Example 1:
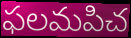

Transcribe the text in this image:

ఫలమపిచ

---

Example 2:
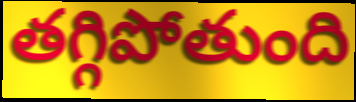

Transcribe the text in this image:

తగ్గిపోతుంది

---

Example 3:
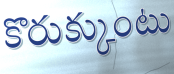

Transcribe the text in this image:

కొరుక్కుంటు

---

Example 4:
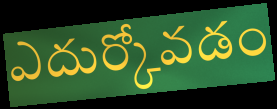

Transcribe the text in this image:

ఎదుర్కోవడం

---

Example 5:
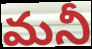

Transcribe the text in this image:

మనీ